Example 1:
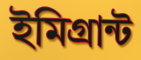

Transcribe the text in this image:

ইমিগ্রান্ট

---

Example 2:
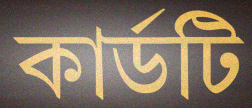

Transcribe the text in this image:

কার্ডটি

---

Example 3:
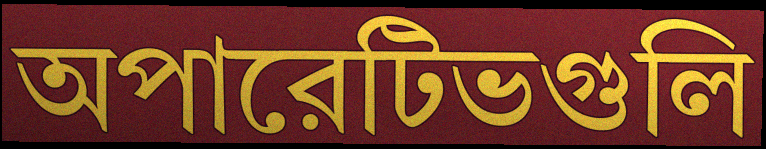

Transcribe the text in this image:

অপারেটিভগুলি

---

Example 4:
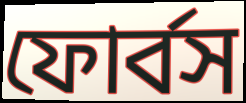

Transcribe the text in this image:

ফোর্বস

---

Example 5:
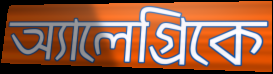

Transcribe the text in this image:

অ্যালেগ্রিকে